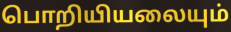
பொறியியலையும்